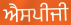
ਐਸਪੀਜੀ